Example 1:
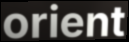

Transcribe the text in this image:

orient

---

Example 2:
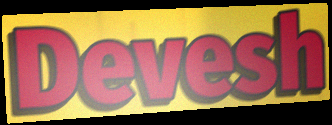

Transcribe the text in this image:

Devesh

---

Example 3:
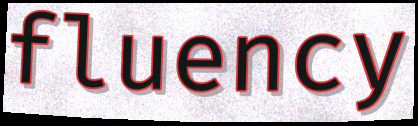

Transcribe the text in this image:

fluency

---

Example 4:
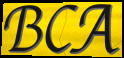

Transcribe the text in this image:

BCA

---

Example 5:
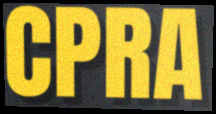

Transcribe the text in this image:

CPRA